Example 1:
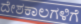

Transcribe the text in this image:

ದೇಶಕಾಲಗಳಿಗೆ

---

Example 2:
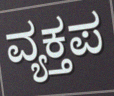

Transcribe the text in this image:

ವ್ಯಕ್ತಪ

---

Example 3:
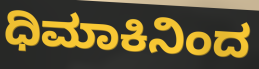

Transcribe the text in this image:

ಧಿಮಾಕಿನಿಂದ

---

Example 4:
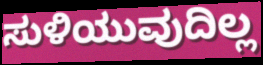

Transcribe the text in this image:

ಸುಳಿಯುವುದಿಲ್ಲ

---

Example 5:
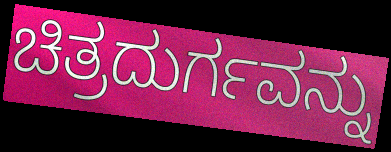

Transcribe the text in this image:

ಚಿತ್ರದುರ್ಗವನ್ನು